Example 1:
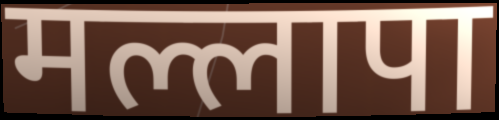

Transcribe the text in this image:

मल्लापा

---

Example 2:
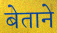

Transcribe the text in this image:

बेताने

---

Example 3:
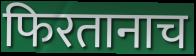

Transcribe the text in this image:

फिरतानाच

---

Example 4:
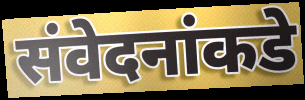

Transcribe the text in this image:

संवेदनांकडे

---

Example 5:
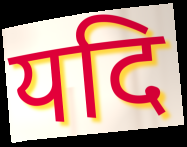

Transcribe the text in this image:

यदि